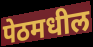
पेठमधील